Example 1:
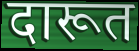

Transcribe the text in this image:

दारूत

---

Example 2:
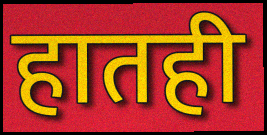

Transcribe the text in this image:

हातही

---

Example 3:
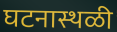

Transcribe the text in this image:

घटनास्थळी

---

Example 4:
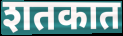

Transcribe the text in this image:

शतकात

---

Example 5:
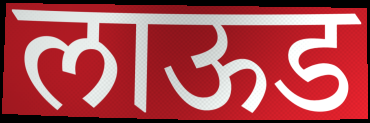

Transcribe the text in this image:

लाऊड